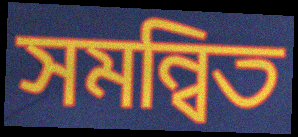
সমন্বিত